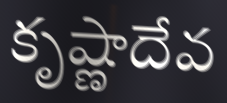
కృష్ణాదేవ